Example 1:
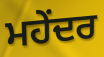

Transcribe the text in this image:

ਮਹੇਂਦਰ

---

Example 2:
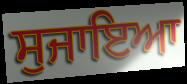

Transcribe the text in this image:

ਸੁਜਾਇਆ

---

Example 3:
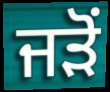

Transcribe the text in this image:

ਜਡ਼ੋਂ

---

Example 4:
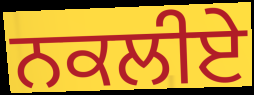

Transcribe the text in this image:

ਨਕਲੀਏ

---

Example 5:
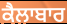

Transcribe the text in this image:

ਕੈਲਾਬਾਰ